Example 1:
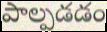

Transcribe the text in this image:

పాల్పడడం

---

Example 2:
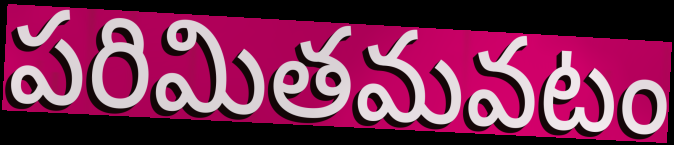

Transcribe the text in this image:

పరిమితమవటం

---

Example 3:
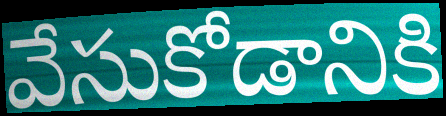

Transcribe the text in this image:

వేసుకోడానికి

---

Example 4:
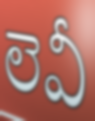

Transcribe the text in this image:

లెవీ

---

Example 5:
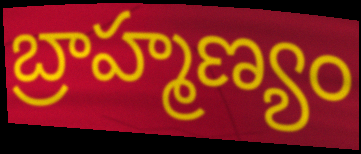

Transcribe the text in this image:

బ్రాహ్మణ్యం